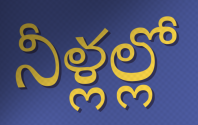
నీళ్లల్లో